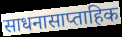
साधनासाप्ताहिक